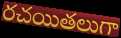
రచయితలుగా